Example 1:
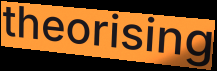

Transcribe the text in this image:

theorising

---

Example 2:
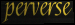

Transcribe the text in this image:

perverse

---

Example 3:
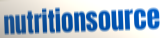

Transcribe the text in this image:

nutritionsource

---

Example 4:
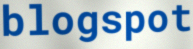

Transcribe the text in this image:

blogspot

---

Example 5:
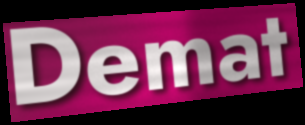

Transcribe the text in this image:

Demat